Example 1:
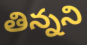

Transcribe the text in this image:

తిన్నని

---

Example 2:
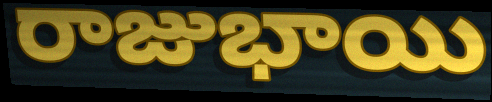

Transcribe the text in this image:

రాజుభాయి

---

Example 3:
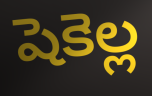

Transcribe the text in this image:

షెకెల్ల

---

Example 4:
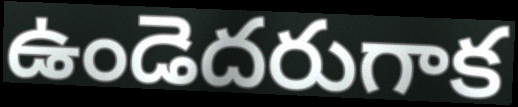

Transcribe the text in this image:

ఉండెదరుగాక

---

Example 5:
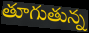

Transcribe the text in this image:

తూగుతున్న